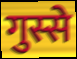
गुस्से